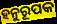
ହନୁରୂପକ